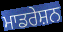
ਮਾਡਰੇਸ਼ਨ